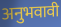
अनुभवावी